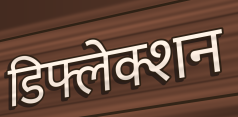
डिफ्लेक्शन